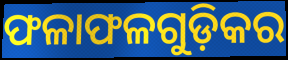
ଫଳାଫଳଗୁଡ଼ିକର